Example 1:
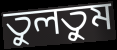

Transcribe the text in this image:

তুলতুম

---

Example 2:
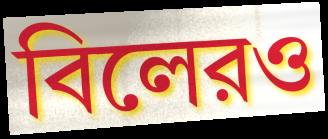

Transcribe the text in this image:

বিলেরও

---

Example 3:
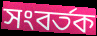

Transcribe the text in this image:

সংবর্তক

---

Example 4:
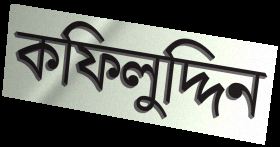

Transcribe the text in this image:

কফিলুদ্দিন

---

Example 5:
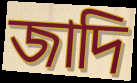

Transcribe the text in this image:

জাদি